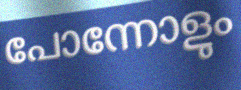
പോന്നോളും